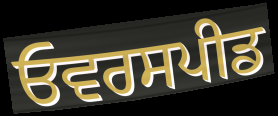
ਓਵਰਸਪੀਡ